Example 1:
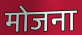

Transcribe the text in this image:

मोजना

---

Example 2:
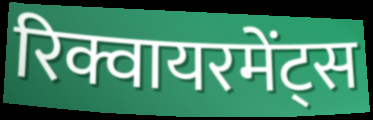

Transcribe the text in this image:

रिक्वायरमेंट्स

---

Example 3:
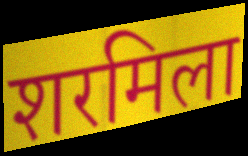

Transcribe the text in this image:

शरमिला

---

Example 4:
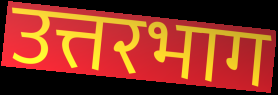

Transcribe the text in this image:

उत्तरभाग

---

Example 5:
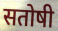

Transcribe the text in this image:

सतोषी